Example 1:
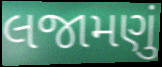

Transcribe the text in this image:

લજામણું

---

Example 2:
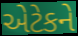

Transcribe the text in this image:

એટેકને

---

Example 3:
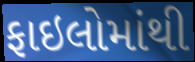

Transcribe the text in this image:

ફાઇલોમાંથી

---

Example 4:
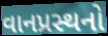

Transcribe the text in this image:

વાનપ્રસ્થનો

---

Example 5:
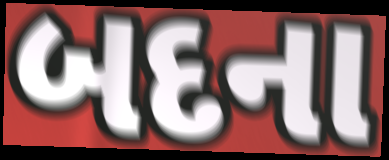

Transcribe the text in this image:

બદના